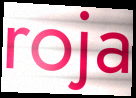
roja